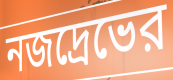
নজদ্রেভের